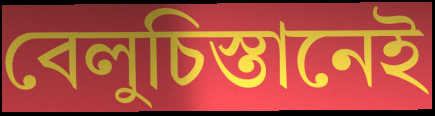
বেলুচিস্তানেই